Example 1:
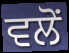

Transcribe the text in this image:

ਵਲੋੰ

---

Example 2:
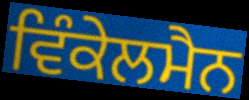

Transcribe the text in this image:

ਵਿੰਕੇਲਮੈਨ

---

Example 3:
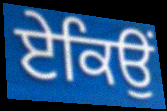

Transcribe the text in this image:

ਏਕਿਉਂ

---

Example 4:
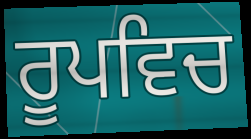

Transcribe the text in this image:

ਰੂਪਵਿਚ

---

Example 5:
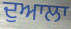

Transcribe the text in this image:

ਦੁਆਲਾ